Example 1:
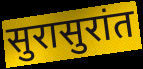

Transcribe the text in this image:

सुरासुरांत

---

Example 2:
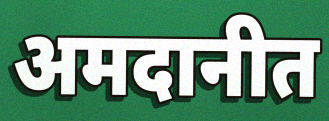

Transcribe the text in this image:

अमदानीत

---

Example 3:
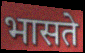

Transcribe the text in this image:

भासते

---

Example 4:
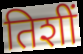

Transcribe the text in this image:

तिशीं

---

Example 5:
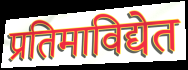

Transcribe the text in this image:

प्रतिमाविद्येत